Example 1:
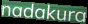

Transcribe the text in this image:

nadakura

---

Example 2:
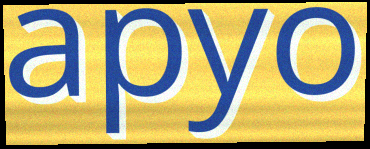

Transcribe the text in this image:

apyo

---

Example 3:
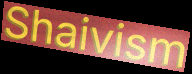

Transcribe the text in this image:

Shaivism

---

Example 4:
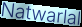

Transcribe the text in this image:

Natwarlal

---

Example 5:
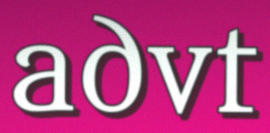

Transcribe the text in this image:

advt